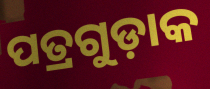
ପତ୍ରଗୁଡ଼ାକ